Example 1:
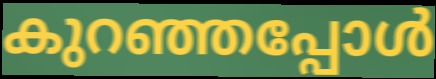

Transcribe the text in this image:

കുറഞ്ഞപ്പോൾ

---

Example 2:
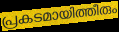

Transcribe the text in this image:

പ്രകടമായിത്തീരും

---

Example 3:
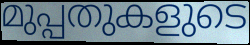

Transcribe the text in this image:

മുപ്പതുകളുടെ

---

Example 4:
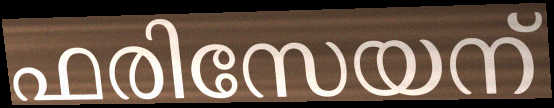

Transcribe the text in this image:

ഫരിസേയന്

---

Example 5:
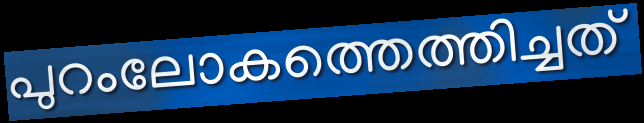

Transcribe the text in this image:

പുറംലോകത്തെത്തിച്ചത്